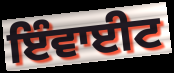
ਇੰਵਾਈਟ